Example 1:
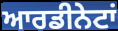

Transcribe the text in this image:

ਆਰਡੀਨੇਟਾਂ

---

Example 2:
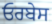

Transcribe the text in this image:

ਓਰਬੇਸ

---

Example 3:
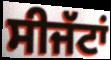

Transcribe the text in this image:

ਸੀਜੱਟਾਂ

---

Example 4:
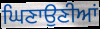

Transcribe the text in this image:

ਘਿਣਾਉਣੀਆਂ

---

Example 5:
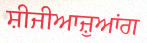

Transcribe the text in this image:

ਸ਼ੀਜੀਆਜ਼ੁਆਂਗ